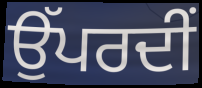
ਉੱਪਰਦੀਂ